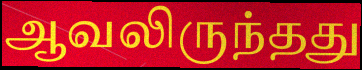
ஆவலிருந்தது